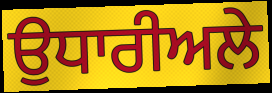
ਉਧਾਰੀਅਲੇ